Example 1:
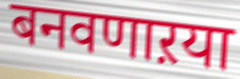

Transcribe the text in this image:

बनवणाऱया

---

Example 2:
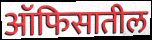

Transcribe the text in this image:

ऑफिसातील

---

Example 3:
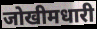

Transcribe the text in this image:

जोखीमधारी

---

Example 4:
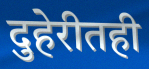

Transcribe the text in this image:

दुहेरीतही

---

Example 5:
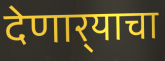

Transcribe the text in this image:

देणार्‍याचा